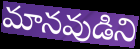
మానవుడిని